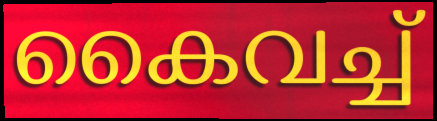
കൈവച്ച്